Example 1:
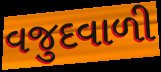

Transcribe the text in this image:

વજુદવાળી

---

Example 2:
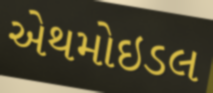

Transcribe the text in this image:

એથમોઇડલ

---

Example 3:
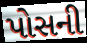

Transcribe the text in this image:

પોસની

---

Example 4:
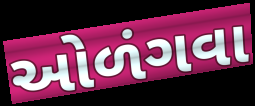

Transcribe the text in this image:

ઓળંગવા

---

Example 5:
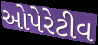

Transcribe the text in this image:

ઓપેરેટીવ